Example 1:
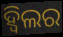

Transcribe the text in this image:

ହ୍ଵିଲର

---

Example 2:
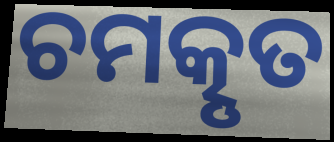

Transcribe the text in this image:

ଚମତ୍କୃତ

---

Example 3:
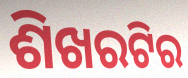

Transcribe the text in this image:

ଶିଖରଟିର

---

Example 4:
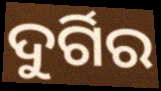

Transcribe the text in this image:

ଦୁର୍ଗିର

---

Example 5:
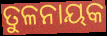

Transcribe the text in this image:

ତୁଳନାୟକ